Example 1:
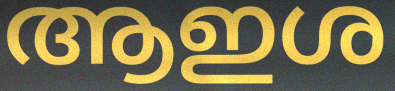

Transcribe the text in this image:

ആഇശ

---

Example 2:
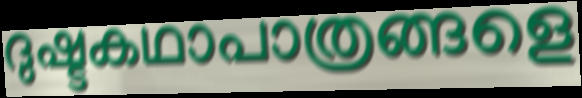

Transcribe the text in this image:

ദുഷ്ടകഥാപാത്രങ്ങളെ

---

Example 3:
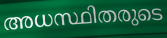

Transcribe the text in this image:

അധസ്ഥിതരുടെ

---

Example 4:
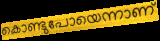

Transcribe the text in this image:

കൊണ്ടുപോയെന്നാണ്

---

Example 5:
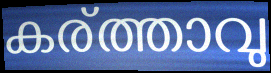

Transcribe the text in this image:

കര്ത്താവു